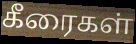
கீரைகள்